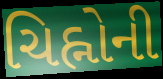
ચિહ્નોની